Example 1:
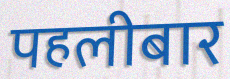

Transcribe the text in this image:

पहलीबार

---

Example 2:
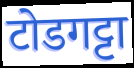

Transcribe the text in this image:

टोडगट्टा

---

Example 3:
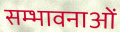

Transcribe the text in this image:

सम्भावनाओं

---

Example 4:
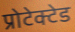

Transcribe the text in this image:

प्रोटेक्टेड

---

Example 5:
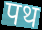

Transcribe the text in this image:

पथ